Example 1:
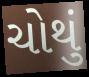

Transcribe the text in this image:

ચોથું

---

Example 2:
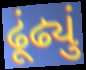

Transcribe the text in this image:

ઢૂંઢ્યું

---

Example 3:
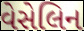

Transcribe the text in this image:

વેસેલિન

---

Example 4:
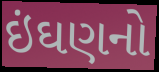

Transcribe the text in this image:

ઇંઘણનો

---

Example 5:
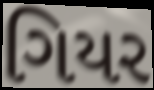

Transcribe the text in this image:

ગિયર